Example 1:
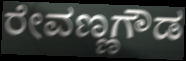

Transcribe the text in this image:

ರೇವಣ್ಣಗೌಡ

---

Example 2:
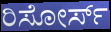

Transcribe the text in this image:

ರಿಸೋರ್ಸ್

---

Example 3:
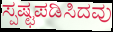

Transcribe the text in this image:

ಸ್ಪಷ್ಟಪಡಿಸಿದವು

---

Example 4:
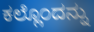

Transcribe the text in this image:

ಕಲ್ಲೊಂದನ್ನು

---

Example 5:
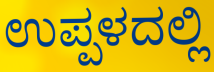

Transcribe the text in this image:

ಉಪ್ಪಳದಲ್ಲಿ